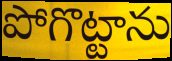
పోగొట్టాను